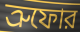
ত্রুফোর